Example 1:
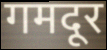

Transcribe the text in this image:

गमदूर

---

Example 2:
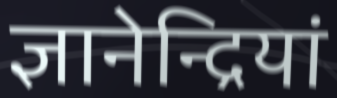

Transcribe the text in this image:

ज्ञानेन्द्रियां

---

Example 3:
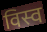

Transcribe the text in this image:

विस्व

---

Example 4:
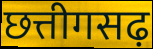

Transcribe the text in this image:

छत्तीगसढ़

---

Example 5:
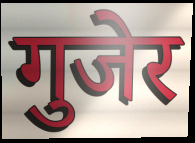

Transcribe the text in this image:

गुजेर